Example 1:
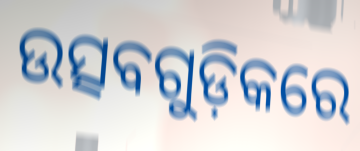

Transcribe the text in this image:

ଉତ୍ସବଗୁଡ଼ିକରେ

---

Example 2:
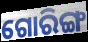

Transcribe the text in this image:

ଗୋରିଙ୍ଗ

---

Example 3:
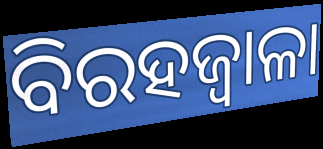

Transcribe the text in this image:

ବିରହଜ୍ୱାଳା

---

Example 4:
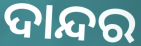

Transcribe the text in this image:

ଦାନ୍ଦର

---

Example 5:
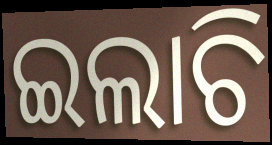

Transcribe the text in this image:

ଇଲାଚି